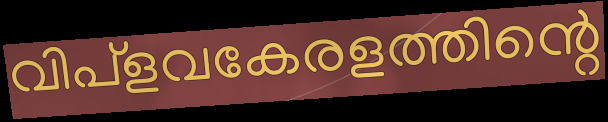
വിപ്ളവകേരളത്തിന്റെ